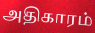
அதிகாரம்